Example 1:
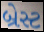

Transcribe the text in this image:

બ્રેસ્ટ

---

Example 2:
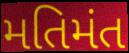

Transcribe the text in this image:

મતિમંત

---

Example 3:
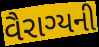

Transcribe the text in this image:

વૈરાગ્યની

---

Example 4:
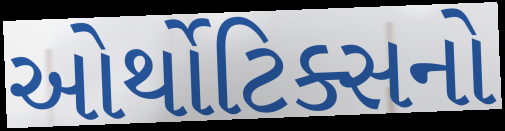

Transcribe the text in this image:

ઓર્થોટિક્સનો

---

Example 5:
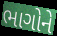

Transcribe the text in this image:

ભાગોને